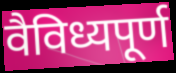
वैविध्यपूर्ण